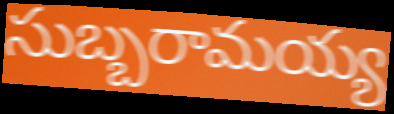
సుబ్బరామయ్య